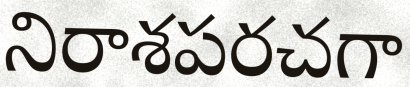
నిరాశపరచగా